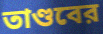
তাণ্ডবের